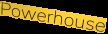
Powerhouse